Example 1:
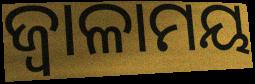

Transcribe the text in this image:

ଜ୍ୱାଳାମୟ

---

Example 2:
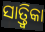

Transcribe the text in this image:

ସାତ୍ତ୍ୱିକା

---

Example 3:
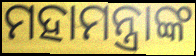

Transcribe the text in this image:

ମହାମନ୍ତ୍ରାଙ୍କ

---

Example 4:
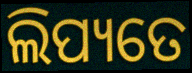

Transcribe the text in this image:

ଲିପ୍ୟତେ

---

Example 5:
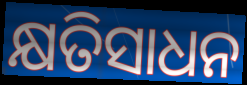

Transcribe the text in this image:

କ୍ଷତିସାଧନ